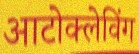
आटोक्लेविंग